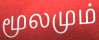
மூலமும்